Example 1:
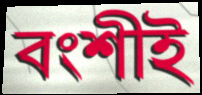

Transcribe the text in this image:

বংশীই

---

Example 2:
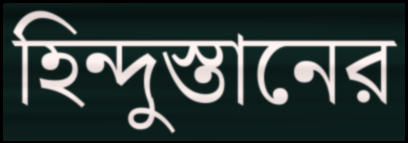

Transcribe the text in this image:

হিন্দুস্তানের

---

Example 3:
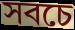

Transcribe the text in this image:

সবচে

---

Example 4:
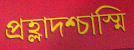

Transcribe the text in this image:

প্রহ্লাদশ্চাস্মি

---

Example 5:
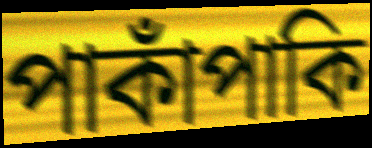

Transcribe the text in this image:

পাকাঁপাকি